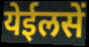
येईलसें